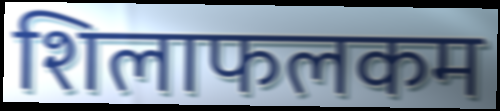
शिलाफलकम